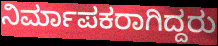
ನಿರ್ಮಾಪಕರಾಗಿದ್ದರು